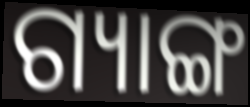
ଗ୍ୟାଙ୍ଗ